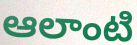
ఆలాంటి